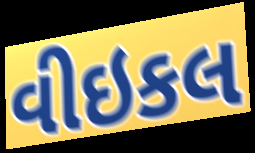
વીઇકલ